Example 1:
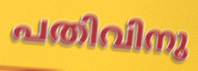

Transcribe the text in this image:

പതിവിനു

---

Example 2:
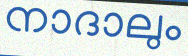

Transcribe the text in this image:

നാദാലും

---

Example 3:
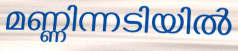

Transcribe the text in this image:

മണ്ണിന്നടിയിൽ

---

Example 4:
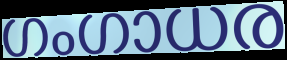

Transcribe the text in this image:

ഗംഗാധര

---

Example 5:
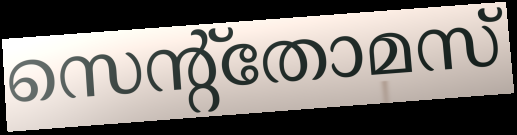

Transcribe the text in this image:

സെന്റ്തോമസ്